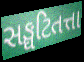
સઙ્ઘટિતત્તા